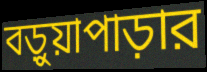
বড়ুয়াপাড়ার